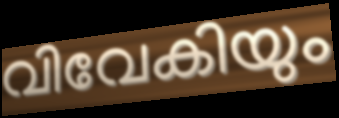
വിവേകിയും